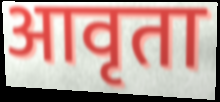
आवृता